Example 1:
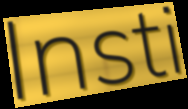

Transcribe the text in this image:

Insti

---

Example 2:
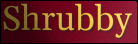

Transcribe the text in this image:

Shrubby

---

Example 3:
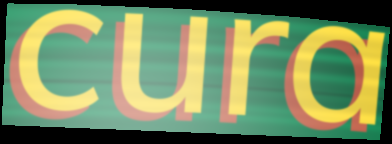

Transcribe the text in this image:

cura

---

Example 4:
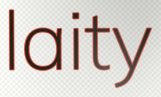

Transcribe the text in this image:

laity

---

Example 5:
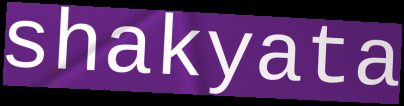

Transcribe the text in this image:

shakyata